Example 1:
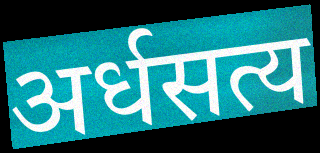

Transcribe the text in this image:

अर्धसत्य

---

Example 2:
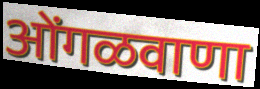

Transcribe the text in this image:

ओंगळवाणा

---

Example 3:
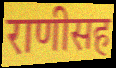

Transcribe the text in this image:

राणीसह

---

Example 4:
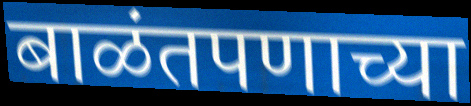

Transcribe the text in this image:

बाळंतपणाच्या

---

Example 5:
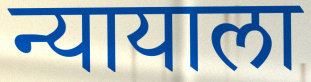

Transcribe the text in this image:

न्यायाला